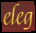
eleg